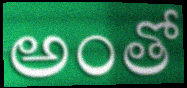
అంతో